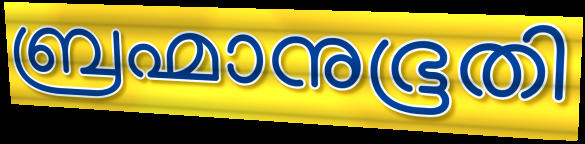
ബ്രഹ്മാനുഭൂതി